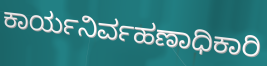
ಕಾರ್ಯನಿರ್ವಹಣಾಧಿಕಾರಿ